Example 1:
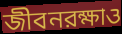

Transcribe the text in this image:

জীবনরক্ষাও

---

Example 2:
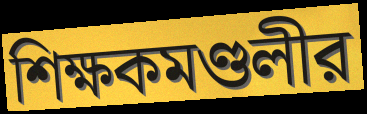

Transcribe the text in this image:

শিক্ষকমণ্ডলীর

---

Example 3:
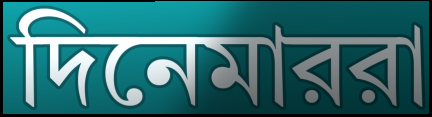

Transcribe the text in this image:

দিনেমাররা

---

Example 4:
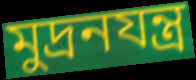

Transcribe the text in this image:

মুদ্রনযন্ত্র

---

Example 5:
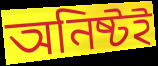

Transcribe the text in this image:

অনিষ্টই